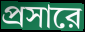
প্রসারে